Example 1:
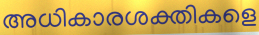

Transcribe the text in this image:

അധികാരശക്തികളെ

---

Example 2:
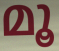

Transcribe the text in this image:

മൂ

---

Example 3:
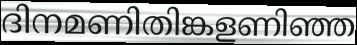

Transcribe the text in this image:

ദിനമണിതിങ്കളണിഞ്ഞ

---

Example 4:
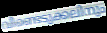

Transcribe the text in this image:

വീണ്ടെടുക്കലിനും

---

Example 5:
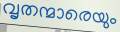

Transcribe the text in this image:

വൃതന്മാരെയും